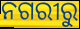
ନଗରୀରୁ